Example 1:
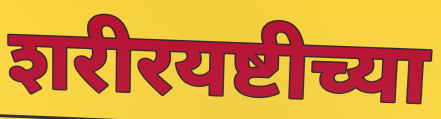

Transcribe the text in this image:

शरीरयष्टीच्या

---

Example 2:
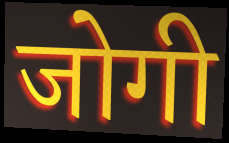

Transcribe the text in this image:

जोगी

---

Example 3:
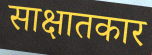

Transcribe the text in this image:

साक्षातकार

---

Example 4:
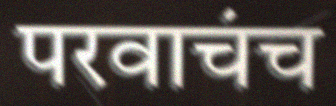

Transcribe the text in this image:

परवाचंच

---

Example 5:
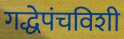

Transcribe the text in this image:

गद्धेपंचविशी